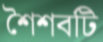
শৈশবটি